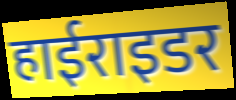
हाईराइडर